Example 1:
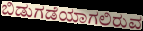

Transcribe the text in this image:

ಬಿಡುಗಡೆಯಾಗಲಿರುವ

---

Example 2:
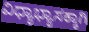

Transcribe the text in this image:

ವಿಧ್ಯಾಭ್ಯಾಸಕ್ಕಾಗಿ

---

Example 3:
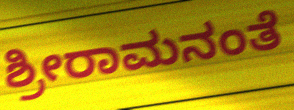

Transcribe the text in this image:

ಶ್ರೀರಾಮನಂತೆ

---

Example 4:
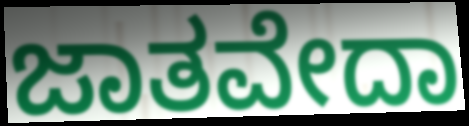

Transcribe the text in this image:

ಜಾತವೇದಾ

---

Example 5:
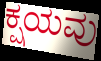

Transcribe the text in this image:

ಕ್ಷಯವು